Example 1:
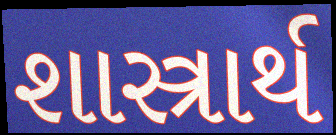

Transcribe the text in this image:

શાસ્ત્રાર્થ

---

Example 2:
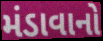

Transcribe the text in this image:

મંડાવાનો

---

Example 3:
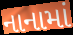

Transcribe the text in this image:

નાનામાં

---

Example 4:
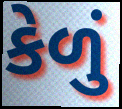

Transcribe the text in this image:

કેળું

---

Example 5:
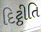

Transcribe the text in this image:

દિટ્ઠીતિ